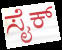
ಸೈಕ್